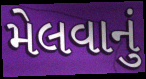
મેલવાનું